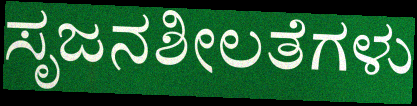
ಸೃಜನಶೀಲತೆಗಳು